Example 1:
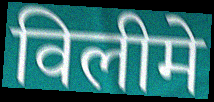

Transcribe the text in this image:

विलीमे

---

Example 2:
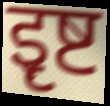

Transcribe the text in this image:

इृष्ट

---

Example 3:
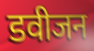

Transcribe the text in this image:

डवीजन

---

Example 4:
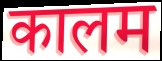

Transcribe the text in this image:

कालम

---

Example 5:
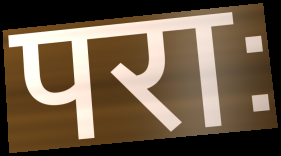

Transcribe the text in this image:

पराः